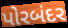
પોરબંદર